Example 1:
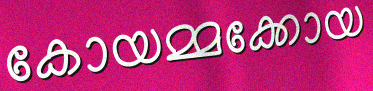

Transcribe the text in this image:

കോയമ്മക്കോയ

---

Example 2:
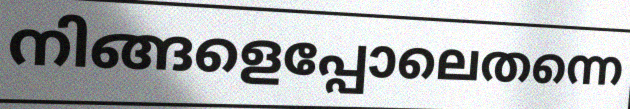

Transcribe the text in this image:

നിങ്ങളെപ്പോലെതന്നെ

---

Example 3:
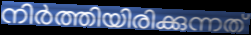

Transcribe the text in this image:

നിർത്തിയിരിക്കുന്നത്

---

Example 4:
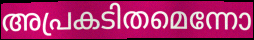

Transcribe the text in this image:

അപ്രകടിതമെന്നോ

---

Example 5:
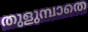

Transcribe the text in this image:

തുളുമ്പാതെ